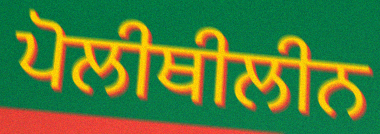
ਪੋਲੀਥੀਲੀਨ